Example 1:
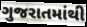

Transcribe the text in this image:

ગુજરાતમાંથી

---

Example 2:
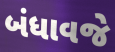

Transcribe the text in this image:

બંધાવજે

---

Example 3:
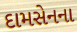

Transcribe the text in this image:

દામસેનના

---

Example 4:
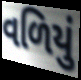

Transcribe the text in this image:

વળિયું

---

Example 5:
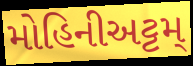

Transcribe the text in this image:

મોહિનીઅટ્ટમ્